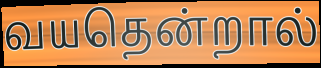
வயதென்றால்